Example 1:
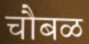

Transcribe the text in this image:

चौबळ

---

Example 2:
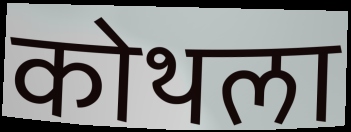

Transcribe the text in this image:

कोथला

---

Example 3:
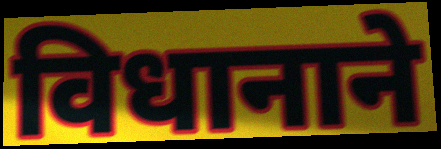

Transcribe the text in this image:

विधानाने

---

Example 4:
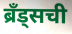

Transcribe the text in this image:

ब्रॅंड्सची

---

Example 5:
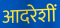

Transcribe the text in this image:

आदरेशीं